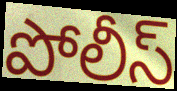
పోలీస్